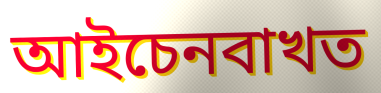
আইচেনবাখত